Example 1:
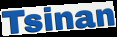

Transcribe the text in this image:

Tsinan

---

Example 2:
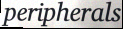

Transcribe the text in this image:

peripherals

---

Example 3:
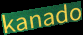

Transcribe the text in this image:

kanado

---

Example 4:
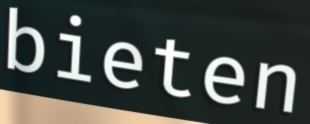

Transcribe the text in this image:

bieten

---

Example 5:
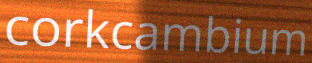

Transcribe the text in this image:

corkcambium